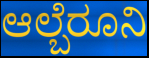
ಆಲ್ಬೆರೂನಿ